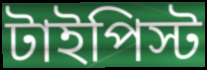
টাইপিস্ট